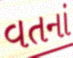
વતનાં